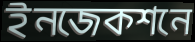
ইনজেকশনে